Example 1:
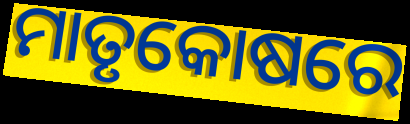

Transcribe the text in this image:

ମାତୃକୋଷରେ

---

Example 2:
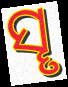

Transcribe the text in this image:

ସୄ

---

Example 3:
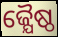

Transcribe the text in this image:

ଜ୍ଯୈଷ୍ଠ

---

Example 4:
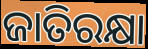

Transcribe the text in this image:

ଜାତିରକ୍ଷା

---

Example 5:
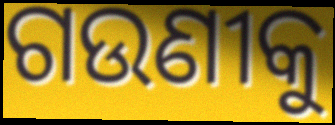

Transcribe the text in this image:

ଗଉଣୀକୁ